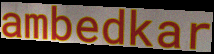
ambedkar